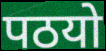
पठयो